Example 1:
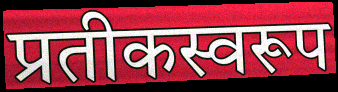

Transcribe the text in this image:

प्रतीकस्वरूप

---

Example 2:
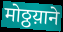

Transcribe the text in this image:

मोठ्ठय़ाने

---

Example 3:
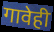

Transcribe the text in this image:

गावेही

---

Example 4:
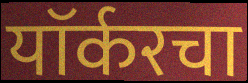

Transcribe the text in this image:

यॉर्करचा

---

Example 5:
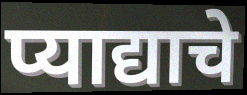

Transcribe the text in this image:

प्याद्याचे